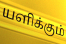
யளிக்கும்